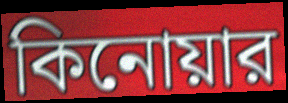
কিনোয়ার